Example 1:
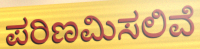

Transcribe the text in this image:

ಪರಿಣಮಿಸಲಿವೆ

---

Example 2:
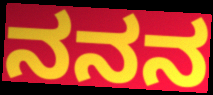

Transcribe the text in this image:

ನನನ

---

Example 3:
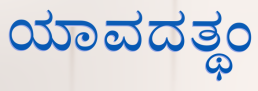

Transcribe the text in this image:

ಯಾವದತ್ಥಂ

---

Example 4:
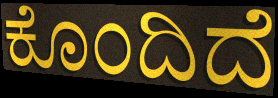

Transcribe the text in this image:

ಕೊಂದಿದೆ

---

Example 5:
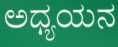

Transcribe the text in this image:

ಅಧ್ಯಯನ